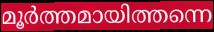
മൂർത്തമായിത്തന്നെ